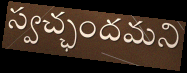
స్వచ్ఛందమని